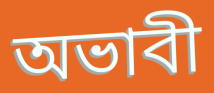
অভাবী